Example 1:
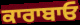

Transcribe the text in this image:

ਕਾਰਾਬਾਓ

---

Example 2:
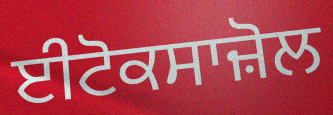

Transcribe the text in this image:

ਈਟੋਕਸਾਜ਼ੋਲ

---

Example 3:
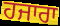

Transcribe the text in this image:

ਹਜਾਰਾ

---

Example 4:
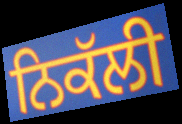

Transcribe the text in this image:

ਨਿਕੱਲੀ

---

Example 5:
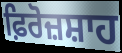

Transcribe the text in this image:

ਫ਼ਿਰੋਜ਼ਸ਼ਾਹ